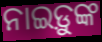
ନାଇଡ଼ୁଙ୍କ